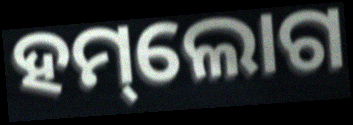
ହମ୍‌ଲୋଗ